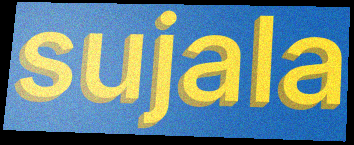
sujala